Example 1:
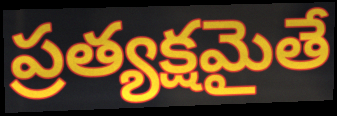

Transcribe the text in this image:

ప్రత్యక్షమైతే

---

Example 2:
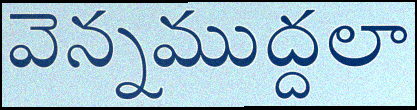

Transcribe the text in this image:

వెన్నముద్దలా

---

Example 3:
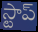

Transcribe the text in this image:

స్టాప్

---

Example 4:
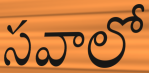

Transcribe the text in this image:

సవాలో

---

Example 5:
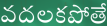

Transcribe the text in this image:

వదలకపోతే